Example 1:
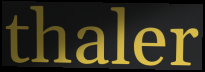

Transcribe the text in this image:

thaler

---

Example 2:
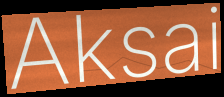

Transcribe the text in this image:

Aksai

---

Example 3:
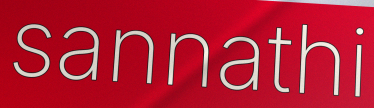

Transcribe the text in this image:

sannathi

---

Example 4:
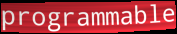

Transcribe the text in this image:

programmable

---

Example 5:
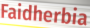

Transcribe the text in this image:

Faidherbia